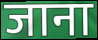
जाना